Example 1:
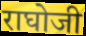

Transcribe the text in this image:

राघोजी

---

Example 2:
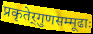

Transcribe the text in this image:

प्रकृतेर्गुणसम्मूढाः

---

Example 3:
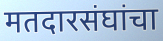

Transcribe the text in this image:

मतदारसंघांचा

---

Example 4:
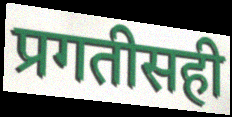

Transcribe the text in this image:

प्रगतीसही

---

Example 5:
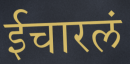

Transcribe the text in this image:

ईचारलं